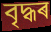
বৃদ্ধৰ